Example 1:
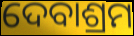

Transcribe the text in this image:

ଦେବାଶ୍ରମ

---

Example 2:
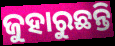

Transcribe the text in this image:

ଜୁହାରୁଛନ୍ତି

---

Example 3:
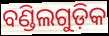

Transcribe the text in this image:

ବଣ୍ଡିଲଗୁଡ଼ିକ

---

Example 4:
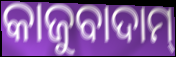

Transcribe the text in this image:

କାଜୁବାଦାମ୍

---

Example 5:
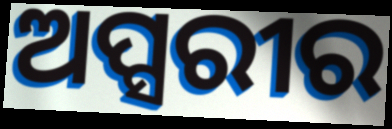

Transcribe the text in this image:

ଅପ୍ସରୀର